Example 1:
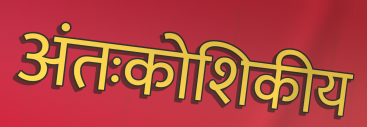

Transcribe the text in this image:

अंतःकोशिकीय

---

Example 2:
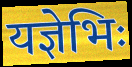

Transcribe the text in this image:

यज्ञेभिः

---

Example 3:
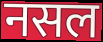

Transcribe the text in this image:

नसल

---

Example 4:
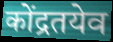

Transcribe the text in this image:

कोंद्रतयेव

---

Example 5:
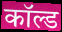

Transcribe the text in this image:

कॉल्ड